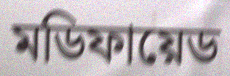
মডিফায়েড